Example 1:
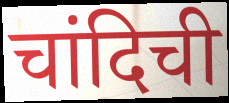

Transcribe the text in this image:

चांदिची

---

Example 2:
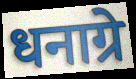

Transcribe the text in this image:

धनाग्रे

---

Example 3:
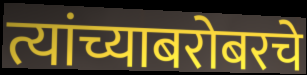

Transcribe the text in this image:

त्यांच्याबरोबरचे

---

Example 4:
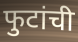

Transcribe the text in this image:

फुटांची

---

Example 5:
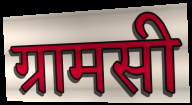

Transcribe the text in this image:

ग्रामसी